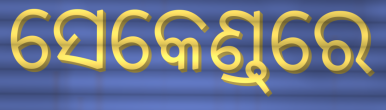
ସେକେଣ୍ଡ୍‌ରେ